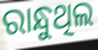
ରାନ୍ଧୁଥିଲ